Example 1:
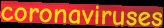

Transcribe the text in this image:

coronaviruses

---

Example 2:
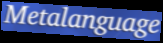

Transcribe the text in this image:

Metalanguage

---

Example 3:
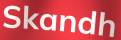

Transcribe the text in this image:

Skandh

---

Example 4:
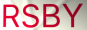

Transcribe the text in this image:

RSBY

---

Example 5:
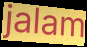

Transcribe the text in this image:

jalam